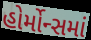
હોર્મોન્સમાં